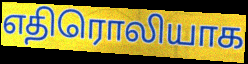
எதிரொலியாக